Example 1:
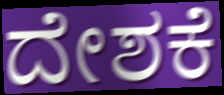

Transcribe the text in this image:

ದೇಶಕೆ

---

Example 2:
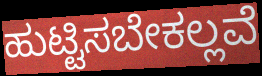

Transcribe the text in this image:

ಹುಟ್ಟಿಸಬೇಕಲ್ಲವೆ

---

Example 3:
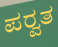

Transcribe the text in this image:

ಪರ್‍ವತ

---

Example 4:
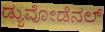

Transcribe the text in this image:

ಡ್ಯುವೋಡೆನಲ್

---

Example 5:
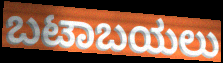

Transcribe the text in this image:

ಬಟಾಬಯಲು